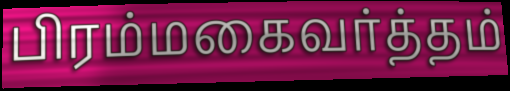
பிரம்மகைவர்த்தம்